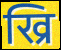
ख्रि